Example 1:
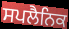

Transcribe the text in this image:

ਸਪਲੈਨਿਕ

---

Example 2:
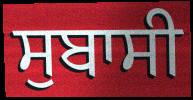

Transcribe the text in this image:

ਸੁਬਾਸੀ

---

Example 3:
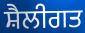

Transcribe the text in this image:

ਸ਼ੈਲੀਗਤ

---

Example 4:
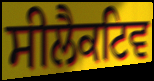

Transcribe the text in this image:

ਸੀਲੈਕਟਿਵ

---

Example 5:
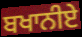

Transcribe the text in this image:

ਬਖਾਨੀਏ